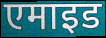
एमाइड